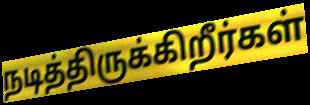
நடித்திருக்கிறீர்கள்